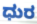
ಧುರ